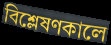
বিশ্লেষণকালে